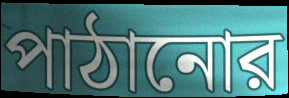
পাঠানোর